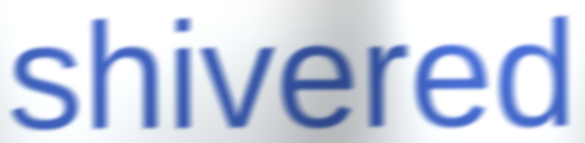
shivered